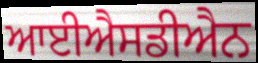
ਆਈਐਸਡੀਐਨ